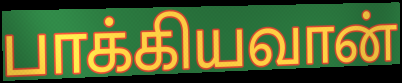
பாக்கியவான்